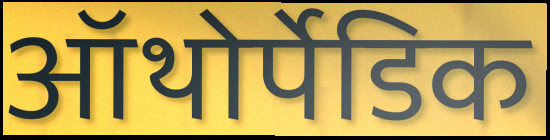
ऑथोर्पेडिक